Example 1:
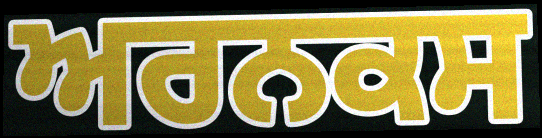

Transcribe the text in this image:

ਅਰਨਕਸ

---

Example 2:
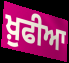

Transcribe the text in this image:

ਖ਼ੁਫੀਆ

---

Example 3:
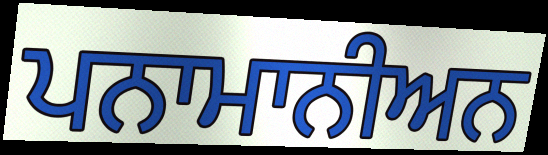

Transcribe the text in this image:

ਪਨਾਮਾਨੀਅਨ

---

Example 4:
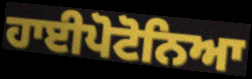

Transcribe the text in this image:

ਹਾਈਪੋਟੋਨਿਆ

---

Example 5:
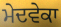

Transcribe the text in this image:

ਮੇਦਵੇਕਾ